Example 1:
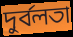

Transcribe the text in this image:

দুর্বলতা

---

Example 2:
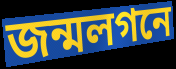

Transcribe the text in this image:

জন্মলগনে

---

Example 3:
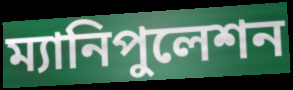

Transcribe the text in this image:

ম্যানিপুলেশন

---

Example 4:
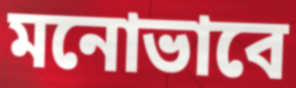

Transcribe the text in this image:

মনোভাবে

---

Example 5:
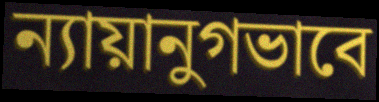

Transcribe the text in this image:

ন্যায়ানুগভাবে